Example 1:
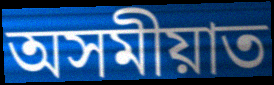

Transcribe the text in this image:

অসমীয়াত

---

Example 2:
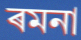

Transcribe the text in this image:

ৰমনা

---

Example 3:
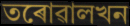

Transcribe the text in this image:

তৰোৱালখন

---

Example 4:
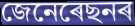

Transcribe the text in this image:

জেনেৰেছনৰ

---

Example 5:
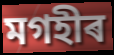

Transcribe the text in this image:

মগহীৰ